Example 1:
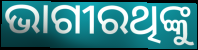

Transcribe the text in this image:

ଭାଗୀରଥିଙ୍କୁ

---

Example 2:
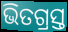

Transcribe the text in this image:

ଭିତଗ୍ରସ୍ତ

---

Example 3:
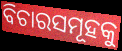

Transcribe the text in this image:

ବିଚାରସମୂହକୁ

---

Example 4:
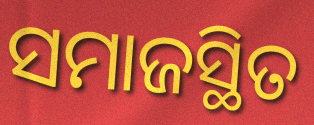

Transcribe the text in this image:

ସମାଜସ୍ଥିତ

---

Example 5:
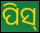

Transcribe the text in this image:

ପିସ୍